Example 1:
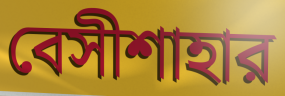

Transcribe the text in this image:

বেসীশাহার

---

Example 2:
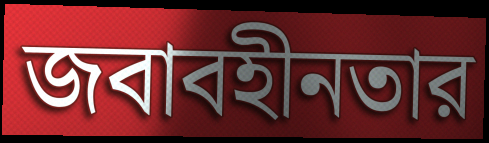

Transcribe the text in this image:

জবাবহীনতার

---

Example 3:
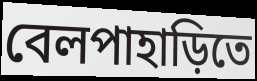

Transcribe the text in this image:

বেলপাহাড়িতে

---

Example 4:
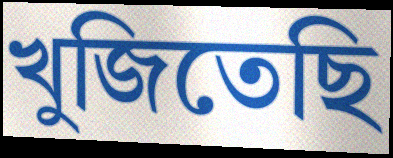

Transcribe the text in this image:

খুজিতেছি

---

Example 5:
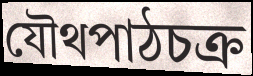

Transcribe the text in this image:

যৌথপাঠচক্র